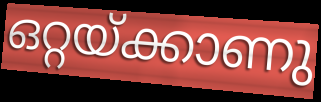
ഒറ്റയ്ക്കാണു